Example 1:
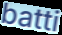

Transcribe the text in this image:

batti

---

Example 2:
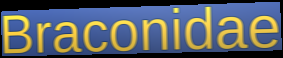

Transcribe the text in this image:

Braconidae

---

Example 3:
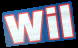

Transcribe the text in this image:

Wil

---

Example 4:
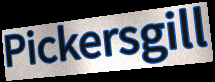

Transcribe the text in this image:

Pickersgill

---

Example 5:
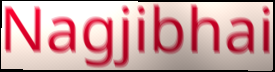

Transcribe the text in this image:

Nagjibhai